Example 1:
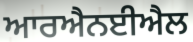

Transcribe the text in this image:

ਆਰਐਨਈਐਲ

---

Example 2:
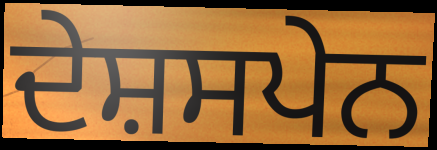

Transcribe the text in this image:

ਦੇਸ਼ਸਪੇਨ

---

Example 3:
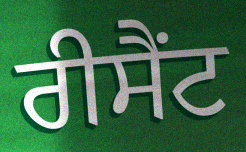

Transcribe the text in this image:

ਰੀਸੈਂਟ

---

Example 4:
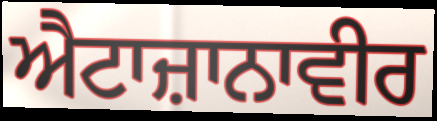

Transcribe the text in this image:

ਐਟਾਜ਼ਾਨਾਵੀਰ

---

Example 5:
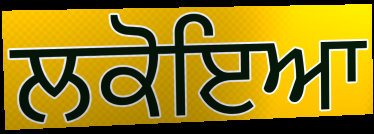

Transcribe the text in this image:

ਲਕੋਇਆ